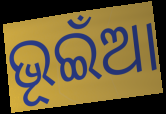
ଭୂଇଁଆ